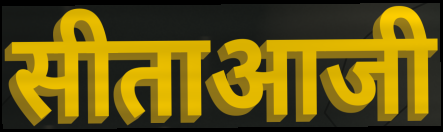
सीताआजी